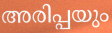
അരിപ്പയും